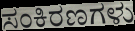
ಸಂಕಿರಣಗಳು